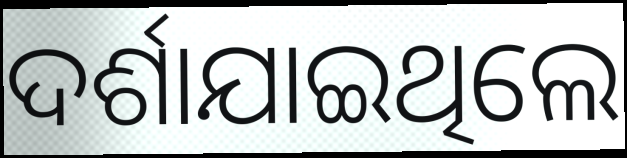
ଦର୍ଶାଯାଇଥିଲେ